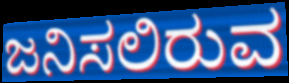
ಜನಿಸಲಿರುವ